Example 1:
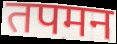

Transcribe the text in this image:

तपमन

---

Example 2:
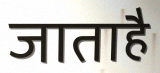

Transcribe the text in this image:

जाताहै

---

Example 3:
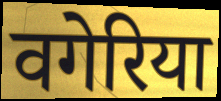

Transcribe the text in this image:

वगेरिया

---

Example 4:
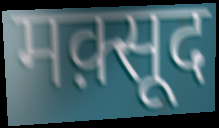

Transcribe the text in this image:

मक़्सूद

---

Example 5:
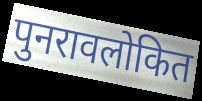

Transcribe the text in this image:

पुनरावलोकित